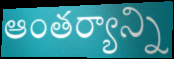
ఆంతర్యాన్ని